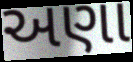
અણા